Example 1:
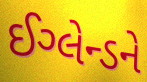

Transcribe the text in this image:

ઈગ્લેન્ડને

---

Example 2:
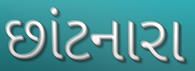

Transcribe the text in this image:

છાંટનારા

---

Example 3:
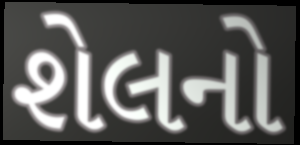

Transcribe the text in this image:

શેલનો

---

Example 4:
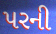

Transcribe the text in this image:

પરની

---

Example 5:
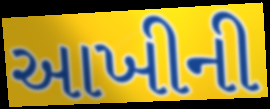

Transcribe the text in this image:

આખીની